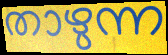
താഴുന്ന